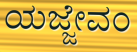
ಯಜ್ಜೇವಂ